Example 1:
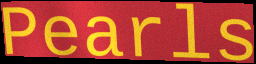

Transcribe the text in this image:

Pearls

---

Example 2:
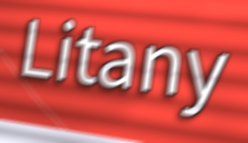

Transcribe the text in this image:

Litany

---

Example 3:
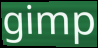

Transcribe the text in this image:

gimp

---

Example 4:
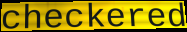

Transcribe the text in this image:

checkered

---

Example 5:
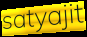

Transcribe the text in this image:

satyajit